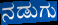
ನಡುಗು